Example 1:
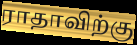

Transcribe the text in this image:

ராதாவிற்கு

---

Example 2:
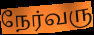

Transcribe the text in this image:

நேர்வரு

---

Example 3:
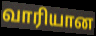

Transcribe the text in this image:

வாரியான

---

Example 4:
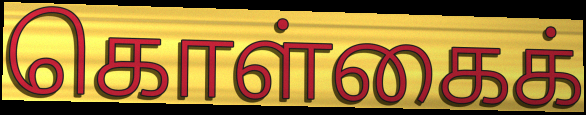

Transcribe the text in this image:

கொள்கைக்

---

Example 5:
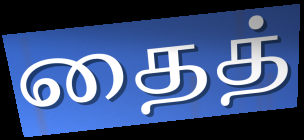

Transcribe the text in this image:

தைத்